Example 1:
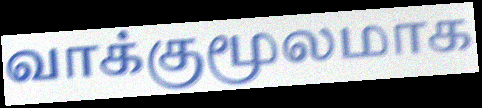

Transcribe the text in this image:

வாக்குமூலமாக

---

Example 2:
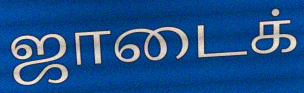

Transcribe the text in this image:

ஜாடைக்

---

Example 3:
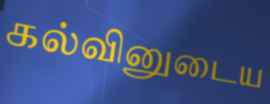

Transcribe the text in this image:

கல்வினுடைய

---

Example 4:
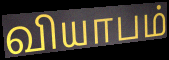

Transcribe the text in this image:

வியாபம்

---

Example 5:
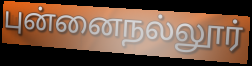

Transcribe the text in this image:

புன்னைநல்லூர்